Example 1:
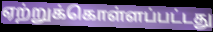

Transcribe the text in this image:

ஏற்றுக்கொள்ளப்பட்டது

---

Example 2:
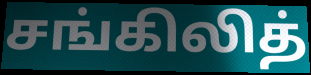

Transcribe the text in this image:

சங்கிலித்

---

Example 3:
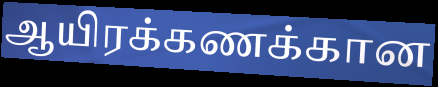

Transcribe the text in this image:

ஆயிரக்கணக்கான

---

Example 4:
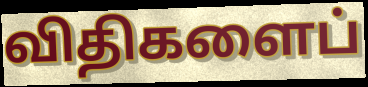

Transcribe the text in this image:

விதிகளைப்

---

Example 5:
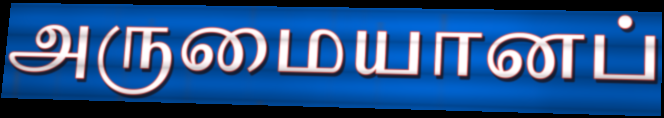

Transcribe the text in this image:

அருமையானப்